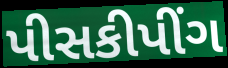
પીસકીપીંગ